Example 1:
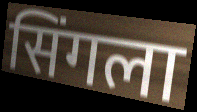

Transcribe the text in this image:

सिंगला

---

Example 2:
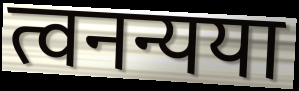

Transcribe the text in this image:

त्वनन्यया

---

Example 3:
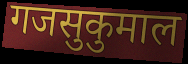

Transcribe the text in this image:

गजसुकुमाल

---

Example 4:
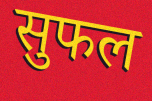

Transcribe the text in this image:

सुफल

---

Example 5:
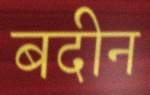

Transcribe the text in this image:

बदीन